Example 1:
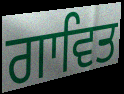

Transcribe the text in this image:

ਗਾਵਿਤ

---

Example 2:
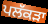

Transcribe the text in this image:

ਪਲੱਕੜਾ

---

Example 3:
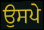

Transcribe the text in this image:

ਉਸਪੇ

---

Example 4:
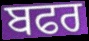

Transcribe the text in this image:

ਬਫਰ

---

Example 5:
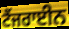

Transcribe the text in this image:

ਟੈਂਜਰਾਈਨ